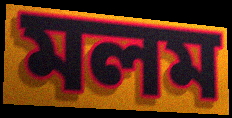
মলম